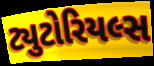
ટ્યુટોરિયલ્સ